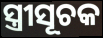
ସ୍ତ୍ରୀସୂଚକ